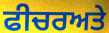
ਫੀਚਰਅਤੇ